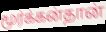
மூர்க்கன்தான்